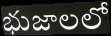
భుజాలలో